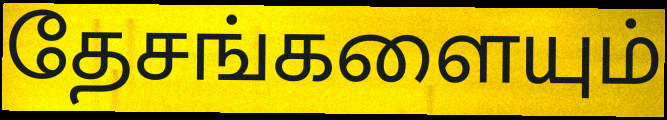
தேசங்களையும்